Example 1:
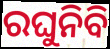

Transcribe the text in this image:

ରଘୁନିବି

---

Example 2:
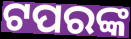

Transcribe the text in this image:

ଟପରଙ୍କ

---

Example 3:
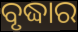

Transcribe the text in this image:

ବୃଦ୍ଧାର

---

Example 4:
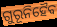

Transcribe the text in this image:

ଗୁରୂନିହୈବ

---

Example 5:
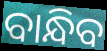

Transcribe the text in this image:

ବାନ୍ଧିବ